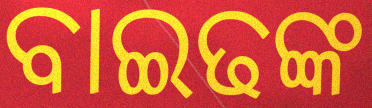
ବାଇଢଙ୍କ